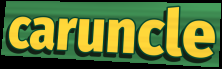
caruncle